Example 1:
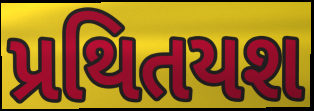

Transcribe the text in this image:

પ્રથિતયશ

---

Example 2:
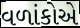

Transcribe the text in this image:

વળાંકોએ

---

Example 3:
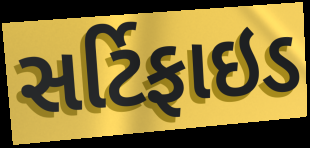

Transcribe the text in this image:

સર્ટિફાઇડ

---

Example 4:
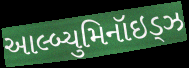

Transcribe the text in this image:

આલ્બ્યુમિનૉઇડ્ઝ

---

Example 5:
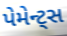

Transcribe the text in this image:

પેમેન્ટ્સ